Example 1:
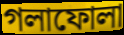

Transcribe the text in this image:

গলাফোলা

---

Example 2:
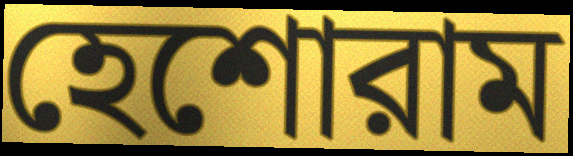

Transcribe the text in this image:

হেশোরাম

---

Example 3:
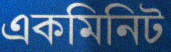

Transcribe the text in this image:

একমিনিট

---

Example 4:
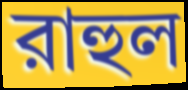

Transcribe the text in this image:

রাহুল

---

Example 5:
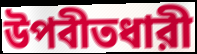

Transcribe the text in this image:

উপবীতধারী